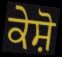
ਕੇਸ਼ੋ